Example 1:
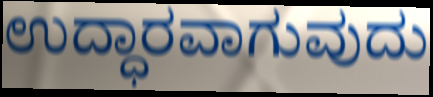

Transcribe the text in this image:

ಉದ್ಧಾರವಾಗುವುದು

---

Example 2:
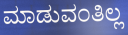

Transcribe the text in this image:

ಮಾಡುವಂತಿಲ್ಲ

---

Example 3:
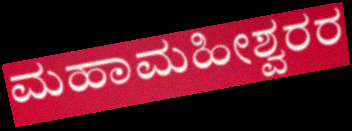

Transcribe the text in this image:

ಮಹಾಮಹೀಶ್ವರರ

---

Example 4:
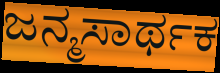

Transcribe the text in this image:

ಜನ್ಮಸಾರ್ಥಕ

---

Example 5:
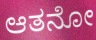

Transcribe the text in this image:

ಆತನೋ